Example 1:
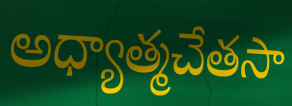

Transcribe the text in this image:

అధ్యాత్మచేతసా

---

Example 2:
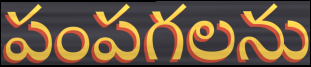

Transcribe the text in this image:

పంపగలను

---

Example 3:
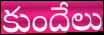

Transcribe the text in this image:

కుందేలు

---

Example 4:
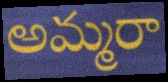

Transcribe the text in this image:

అమ్మరా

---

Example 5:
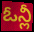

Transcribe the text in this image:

ఓన్లీ